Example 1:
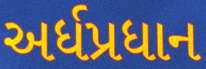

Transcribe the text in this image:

અર્ધપ્રધાન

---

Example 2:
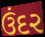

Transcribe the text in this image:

ઉંદર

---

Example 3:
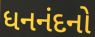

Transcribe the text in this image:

ધનનંદનો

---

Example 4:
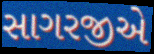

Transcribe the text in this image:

સાગરજીએ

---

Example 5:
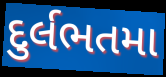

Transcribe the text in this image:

દુર્લભતમા